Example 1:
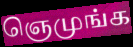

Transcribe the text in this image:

ஞெமுங்க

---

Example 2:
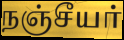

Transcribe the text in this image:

நஞ்சீயர்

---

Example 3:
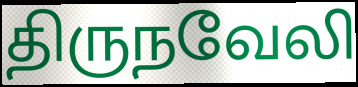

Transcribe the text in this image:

திருநவேலி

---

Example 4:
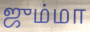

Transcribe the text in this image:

ஜும்மா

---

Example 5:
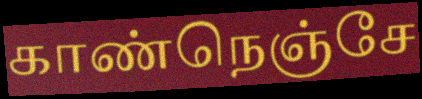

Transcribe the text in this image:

காண்நெஞ்சே